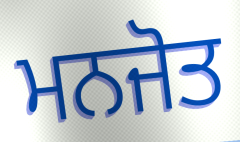
ਮਨਜੋਤ